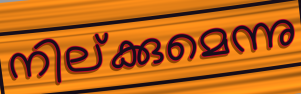
നില്ക്കുമെന്നു